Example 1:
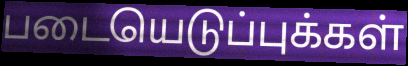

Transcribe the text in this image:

படையெடுப்புக்கள்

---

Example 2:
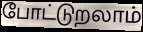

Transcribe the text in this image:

போட்டுறலாம்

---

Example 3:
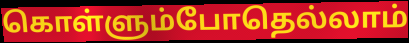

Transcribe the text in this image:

கொள்ளும்போதெல்லாம்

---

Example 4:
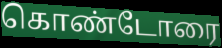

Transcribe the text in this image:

கொண்டோரை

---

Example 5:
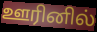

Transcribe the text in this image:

ஊரினில்